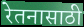
रेतनासाठी